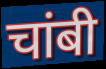
चांबी